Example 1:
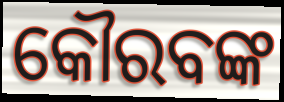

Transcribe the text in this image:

କୌରବଙ୍କ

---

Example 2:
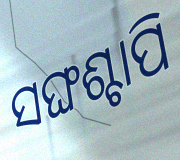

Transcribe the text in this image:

ସଙ୍ଘଶ୍ଚାପି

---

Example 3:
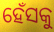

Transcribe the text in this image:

ହେଁସକୁ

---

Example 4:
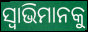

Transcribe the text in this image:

ସ୍ୱାଭିମାନକୁ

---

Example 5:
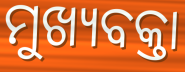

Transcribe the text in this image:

ମୁଖ୍ୟବକ୍ତା